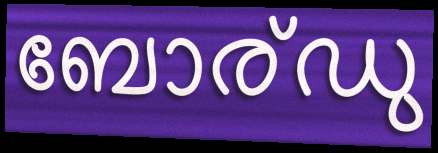
ബോര്ഡു